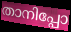
താനിപ്പോ